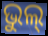
ଭୁଲ୍